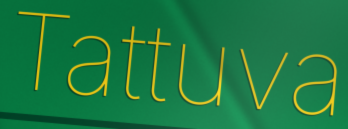
Tattuva